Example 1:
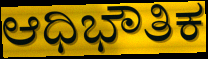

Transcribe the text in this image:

ಆಧಿಭೌತಿಕ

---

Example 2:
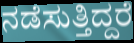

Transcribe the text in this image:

ನಡೆಸುತ್ತಿದ್ದರೆ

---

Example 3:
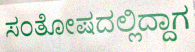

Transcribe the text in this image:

ಸಂತೋಷದಲ್ಲಿದ್ದಾಗ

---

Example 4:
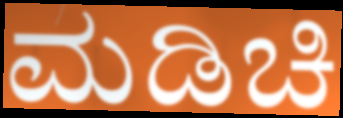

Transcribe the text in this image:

ಮಡಿಚಿ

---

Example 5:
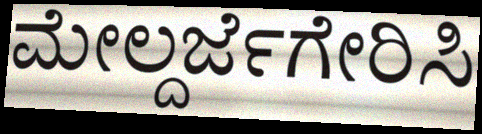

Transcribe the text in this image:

ಮೇಲ್ದರ್ಜೆಗೇರಿಸಿ